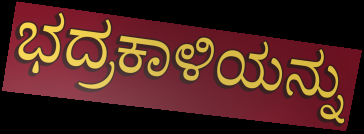
ಭದ್ರಕಾಳಿಯನ್ನು